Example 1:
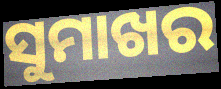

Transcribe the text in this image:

ସୁମାଖର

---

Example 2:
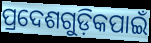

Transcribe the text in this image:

ପ୍ରଦେଶଗୁଡ଼ିକପାଇଁ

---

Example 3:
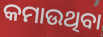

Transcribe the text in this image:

କମାଉଥିବା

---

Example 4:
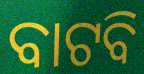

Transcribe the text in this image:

ବାଟବି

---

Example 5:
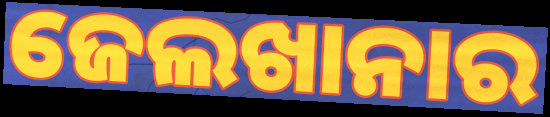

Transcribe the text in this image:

ଜେଲଖାନାର